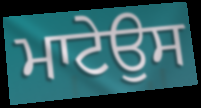
ਮਾਟੇਉਸ